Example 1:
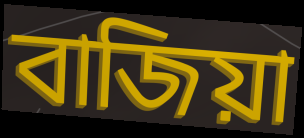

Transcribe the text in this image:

বাজিয়া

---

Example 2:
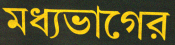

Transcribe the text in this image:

মধ্যভাগের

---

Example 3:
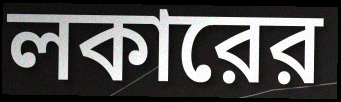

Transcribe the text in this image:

লকারের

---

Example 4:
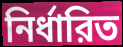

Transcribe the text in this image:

নির্ধারিত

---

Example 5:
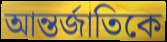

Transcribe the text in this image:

আন্তর্জাতিকে